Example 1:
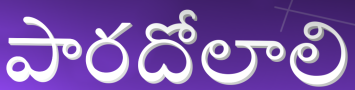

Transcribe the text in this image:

పారదోలాలి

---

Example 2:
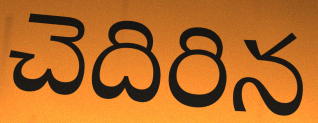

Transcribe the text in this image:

చెదిరిన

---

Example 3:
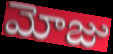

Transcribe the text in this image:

మోజు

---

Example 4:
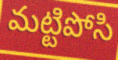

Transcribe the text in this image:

మట్టిపోసి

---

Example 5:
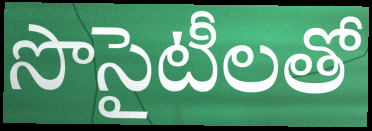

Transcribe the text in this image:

సొసైటీలతో